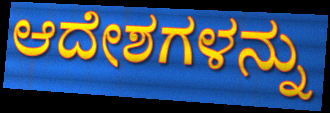
ಆದೇಶಗಳನ್ನು